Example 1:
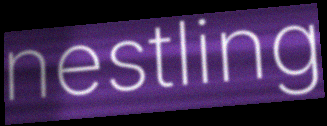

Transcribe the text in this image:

nestling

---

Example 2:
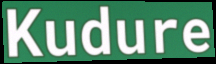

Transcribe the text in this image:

Kudure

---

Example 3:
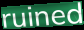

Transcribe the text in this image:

ruined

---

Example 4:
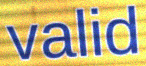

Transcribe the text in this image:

valid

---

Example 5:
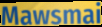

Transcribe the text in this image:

Mawsmai